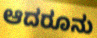
ಆದರೂನು